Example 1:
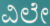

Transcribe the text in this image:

ವಿಲೇ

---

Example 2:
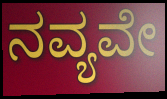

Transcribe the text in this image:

ನವ್ಯವೇ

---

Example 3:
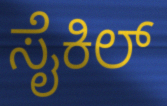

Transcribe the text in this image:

ಸೈಕಿಲ್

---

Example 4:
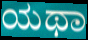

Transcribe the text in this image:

ಯಥಾ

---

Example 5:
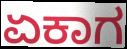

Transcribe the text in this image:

ಏಕಾಗ